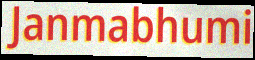
Janmabhumi